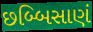
છબ્બિસાણં